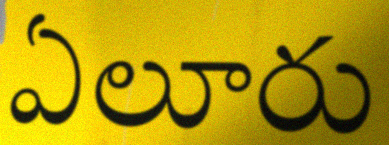
ఏలూరు